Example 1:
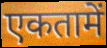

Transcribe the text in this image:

एकतामें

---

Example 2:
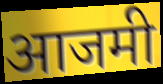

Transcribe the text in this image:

आजमी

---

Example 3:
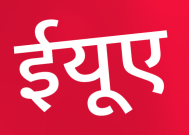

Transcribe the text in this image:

ईयूए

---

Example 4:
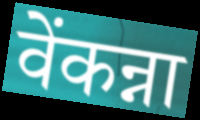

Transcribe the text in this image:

वेंकन्ना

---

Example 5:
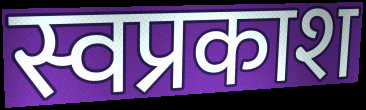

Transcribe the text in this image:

स्वप्रकाश